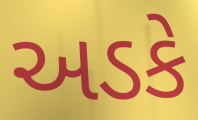
અડકે